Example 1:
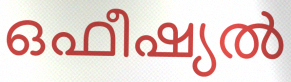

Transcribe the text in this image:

ഒഫീഷ്യൽ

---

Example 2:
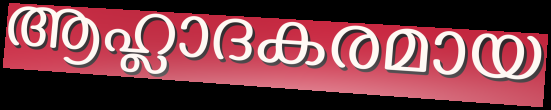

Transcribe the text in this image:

ആഹ്ലാദകരമായ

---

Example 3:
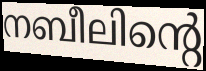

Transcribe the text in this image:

നബീലിന്റെ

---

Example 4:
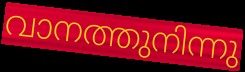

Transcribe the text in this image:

വാനത്തുനിന്നു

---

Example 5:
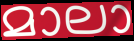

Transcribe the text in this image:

മാലാ